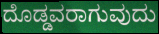
ದೊಡ್ಡವರಾಗುವುದು